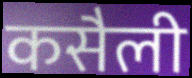
कसैली